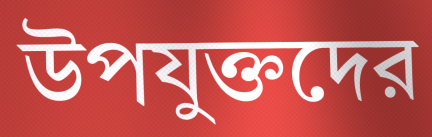
উপযুক্তদের